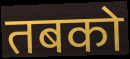
तबको